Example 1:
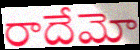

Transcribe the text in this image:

రాదేమో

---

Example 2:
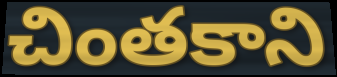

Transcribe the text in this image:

చింతకాని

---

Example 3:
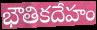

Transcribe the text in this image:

భౌతికదేహం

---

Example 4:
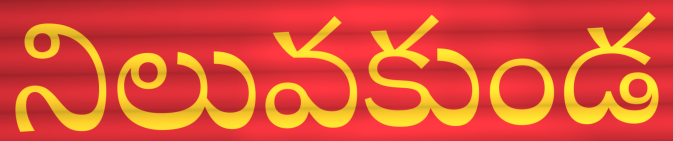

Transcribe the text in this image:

నిలువకుండ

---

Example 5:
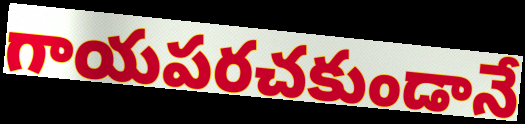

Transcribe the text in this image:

గాయపరచకుండానే